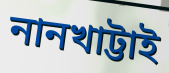
নানখাট্টাই